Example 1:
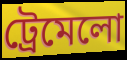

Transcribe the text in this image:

ট্রেমেলো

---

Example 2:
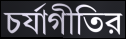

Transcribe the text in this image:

চর্যাগীতির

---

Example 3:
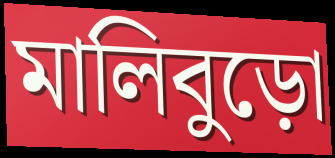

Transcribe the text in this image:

মালিবুড়ো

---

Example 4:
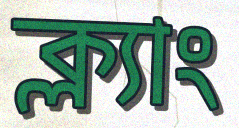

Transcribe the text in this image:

ক্ল্যাং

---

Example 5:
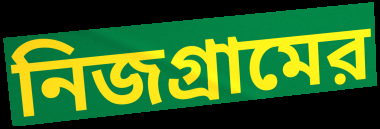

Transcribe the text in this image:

নিজগ্রামের